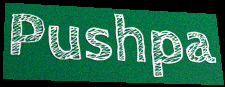
Pushpa